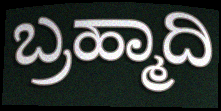
ಬ್ರಹ್ಮಾದಿ